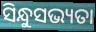
ସିନ୍ଧୁସଭ୍ୟତା